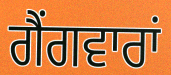
ਗੈਂਗਵਾਰਾਂ